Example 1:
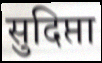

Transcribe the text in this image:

सुदिप्ता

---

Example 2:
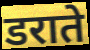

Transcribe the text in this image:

डराते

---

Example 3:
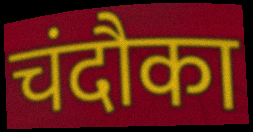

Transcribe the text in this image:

चंदौका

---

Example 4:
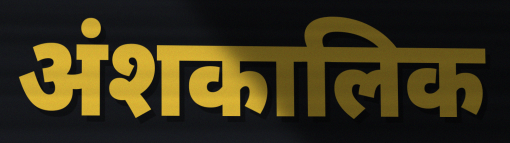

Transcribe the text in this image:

अंशकालिक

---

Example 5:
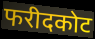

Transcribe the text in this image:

फरीदकोट